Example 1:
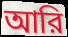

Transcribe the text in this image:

আরি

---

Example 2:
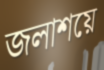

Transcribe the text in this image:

জলাশয়ে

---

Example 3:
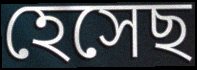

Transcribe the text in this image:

হেসেছ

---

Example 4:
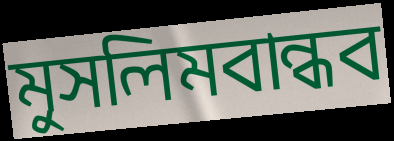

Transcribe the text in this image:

মুসলিমবান্ধব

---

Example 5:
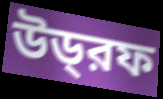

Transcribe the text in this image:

উড্‌রফ